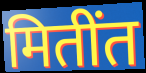
मितींत